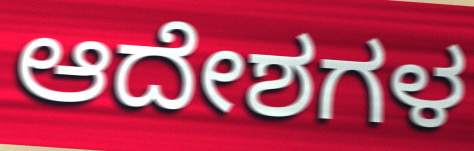
ಆದೇಶಗಳ